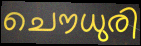
ചൌധുരി